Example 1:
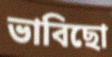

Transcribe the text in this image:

ভাবিছো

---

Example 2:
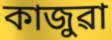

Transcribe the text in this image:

কাজুৱা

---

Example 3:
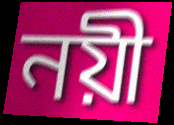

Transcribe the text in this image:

নয়ী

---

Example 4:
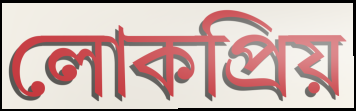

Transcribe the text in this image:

লোকপ্ৰিয়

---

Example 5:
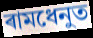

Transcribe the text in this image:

ৰামধেনুত